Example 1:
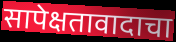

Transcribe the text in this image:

सापेक्षतावादाचा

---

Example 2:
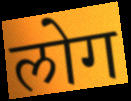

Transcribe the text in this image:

लोग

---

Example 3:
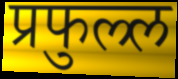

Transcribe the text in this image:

प्रफुल्ल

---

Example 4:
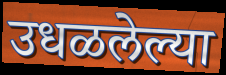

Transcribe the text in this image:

उधळलेल्या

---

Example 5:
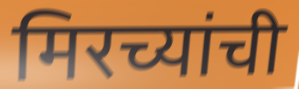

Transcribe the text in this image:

मिरच्यांची